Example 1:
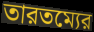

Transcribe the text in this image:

তারতম্যের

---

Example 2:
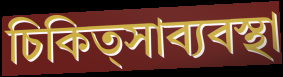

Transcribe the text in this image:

চিকিত্সাব্যবস্থা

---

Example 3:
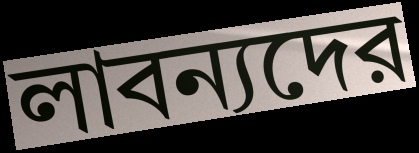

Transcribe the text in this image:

লাবন্যদের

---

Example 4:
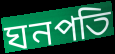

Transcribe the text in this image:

ঘনপতি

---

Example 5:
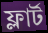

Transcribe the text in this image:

ফ্লার্ট